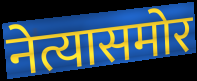
नेत्यासमोर